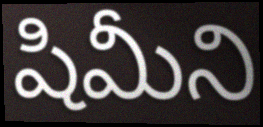
షిమీని